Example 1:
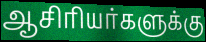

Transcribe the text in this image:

ஆசிரியர்களுக்கு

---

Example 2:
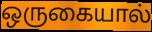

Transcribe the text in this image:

ஒருகையால்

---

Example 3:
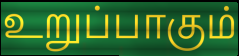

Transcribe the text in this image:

உறுப்பாகும்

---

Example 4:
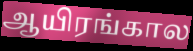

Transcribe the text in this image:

ஆயிரங்கால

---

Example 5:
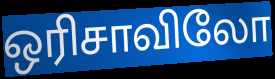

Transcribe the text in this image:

ஒரிசாவிலோ